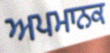
ਅਪਮਾਨਕ